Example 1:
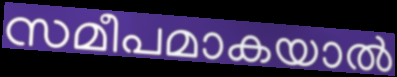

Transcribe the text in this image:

സമീപമാകയാൽ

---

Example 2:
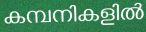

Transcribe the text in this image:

കമ്പനികളിൽ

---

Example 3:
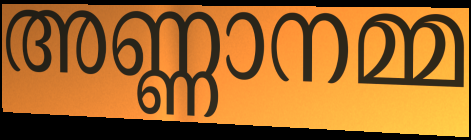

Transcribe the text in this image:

അണ്ണാനമ്മ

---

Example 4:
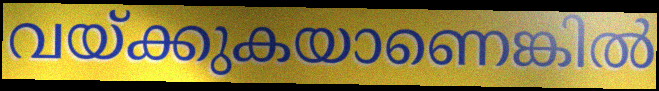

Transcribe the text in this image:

വയ്ക്കുകയാണെങ്കിൽ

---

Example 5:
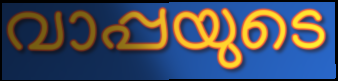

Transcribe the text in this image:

വാപ്പയുടെ